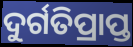
ଦୁର୍ଗତିପ୍ରାପ୍ତ